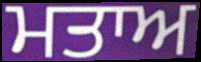
ਮਤਾਅ